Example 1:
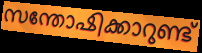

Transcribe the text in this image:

സന്തോഷിക്കാറുണ്ട്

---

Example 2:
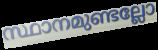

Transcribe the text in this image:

സ്ഥാനമുണ്ടല്ലോ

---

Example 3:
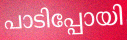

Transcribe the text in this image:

പാടിപ്പോയി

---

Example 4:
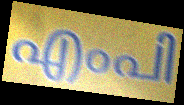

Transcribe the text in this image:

എംപി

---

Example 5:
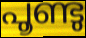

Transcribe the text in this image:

പൂണ്ടു